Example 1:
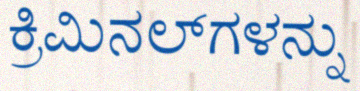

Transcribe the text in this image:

ಕ್ರಿಮಿನಲ್‍ಗಳನ್ನು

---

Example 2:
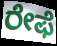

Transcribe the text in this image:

ರೇಫೆ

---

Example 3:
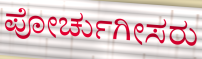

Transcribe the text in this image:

ಪೋರ್ಚುಗೀಸರು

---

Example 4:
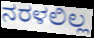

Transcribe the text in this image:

ನರಳಲಿಲ್ಲ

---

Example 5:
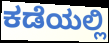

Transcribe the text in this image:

ಕಡೆಯಲ್ಲಿ